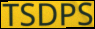
TSDPS